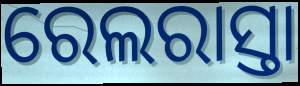
ରେଲରାସ୍ତା